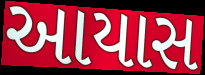
આયાસ